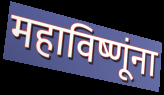
महाविष्णूंना